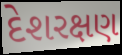
દેશરક્ષણ